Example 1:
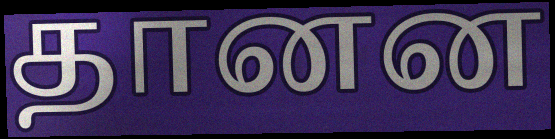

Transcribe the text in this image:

தானன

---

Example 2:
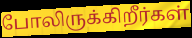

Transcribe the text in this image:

போலிருக்கிறீர்கள்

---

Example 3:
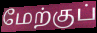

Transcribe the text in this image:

மேற்குப்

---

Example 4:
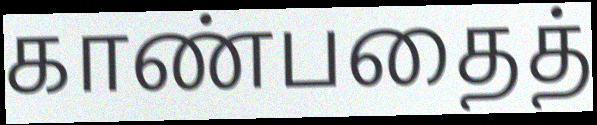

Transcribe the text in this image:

காண்பதைத்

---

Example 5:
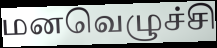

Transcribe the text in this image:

மனவெழுச்சி